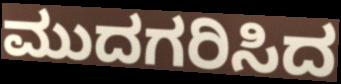
ಮುದಗರಿಸಿದ